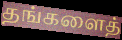
தங்களைத்